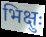
भिक्षुः